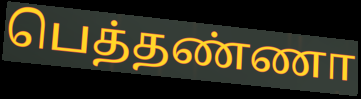
பெத்தண்ணா